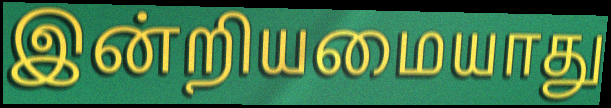
இன்றியமையாது